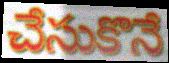
చేసుకొనే